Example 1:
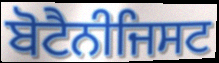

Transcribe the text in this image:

ਬੋਟੈਨੀਜਿਸਟ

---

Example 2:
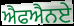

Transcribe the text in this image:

ਐਫਐਨਏ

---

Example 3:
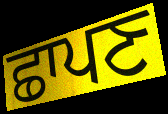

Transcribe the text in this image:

ਛਾਪਣ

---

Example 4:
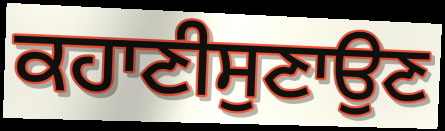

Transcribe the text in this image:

ਕਹਾਣੀਸੁਣਾਉਣ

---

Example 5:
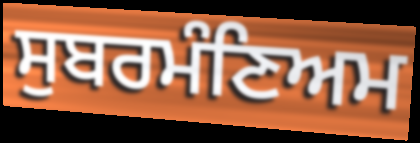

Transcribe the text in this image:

ਸੁਬਰਮੰਣਿਅਮ